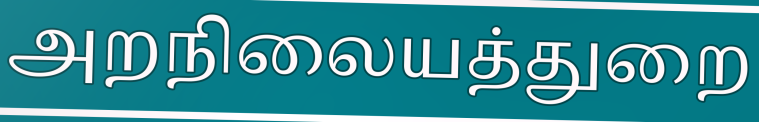
அறநிலையத்துறை